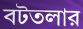
বটতলার